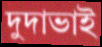
দুদাভাই